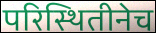
परिस्थितीनेच